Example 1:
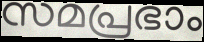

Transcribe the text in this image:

സമപ്രഭാം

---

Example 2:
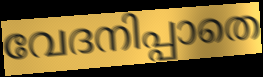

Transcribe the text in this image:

വേദനിപ്പാതെ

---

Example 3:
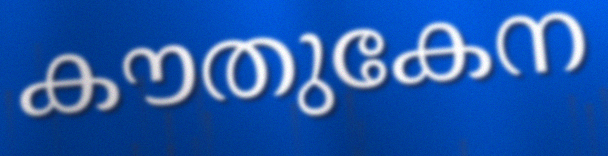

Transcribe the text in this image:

കൗതുകേന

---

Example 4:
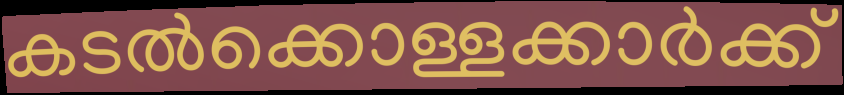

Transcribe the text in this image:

കടൽക്കൊള്ളക്കാർക്ക്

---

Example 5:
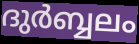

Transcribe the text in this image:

ദുർബ്ബലം